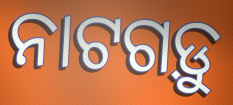
ନାଟଗଡ଼ୁ